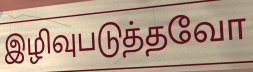
இழிவுபடுத்தவோ